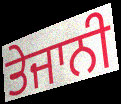
ਤੇਜਾਨੀ